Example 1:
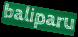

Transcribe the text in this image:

baliparu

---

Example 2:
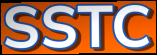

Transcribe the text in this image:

SSTC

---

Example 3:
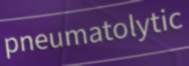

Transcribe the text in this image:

pneumatolytic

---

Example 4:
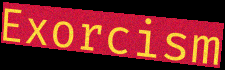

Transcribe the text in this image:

Exorcism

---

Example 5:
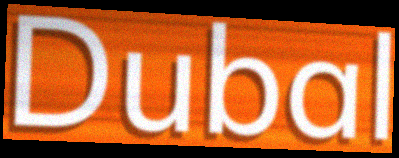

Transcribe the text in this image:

Dubal